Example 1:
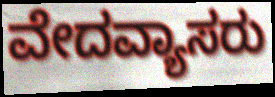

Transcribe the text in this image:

ವೇದವ್ಯಾಸರು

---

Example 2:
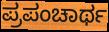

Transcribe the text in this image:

ಪ್ರಪಂಚಾರ್ಥ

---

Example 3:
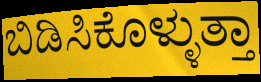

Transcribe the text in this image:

ಬಿಡಿಸಿಕೊಳ್ಳುತ್ತಾ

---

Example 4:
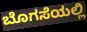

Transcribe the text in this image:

ಬೊಗಸೆಯಲ್ಲಿ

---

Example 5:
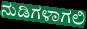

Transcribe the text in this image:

ನುಡಿಗಳಾಗಲಿ